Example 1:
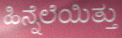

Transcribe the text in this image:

ಹಿನ್ನೆಲೆಯಿತ್ತು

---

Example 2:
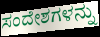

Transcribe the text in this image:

ಸಂದೇಶಗಳನ್ನು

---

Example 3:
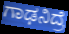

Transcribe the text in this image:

ಗಾಢನಿದ್ರೆ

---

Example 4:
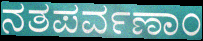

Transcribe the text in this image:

ನತಪರ್ವಣಾಂ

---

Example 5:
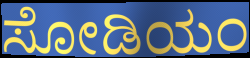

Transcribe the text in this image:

ಸೋಡಿಯಂ